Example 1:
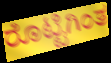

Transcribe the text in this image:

ರೊಟ್ಟಿಗಿಂತ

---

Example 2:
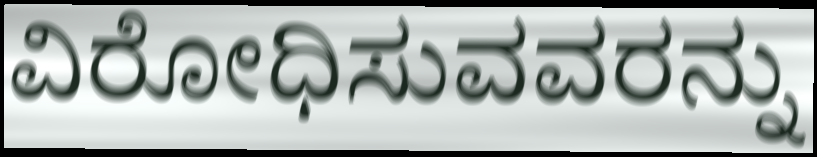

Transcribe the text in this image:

ವಿರೋಧಿಸುವವರನ್ನು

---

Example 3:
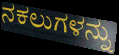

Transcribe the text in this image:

ನಕಲುಗಳನ್ನು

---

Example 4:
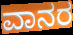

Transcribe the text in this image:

ವಾನರ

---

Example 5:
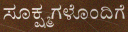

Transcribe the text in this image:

ಸೂಕ್ಷ್ಮಗಳೊಂದಿಗೆ